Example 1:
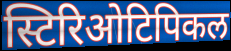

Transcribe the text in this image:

स्टिरिओटिपिकल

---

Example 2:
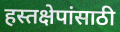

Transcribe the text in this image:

हस्तक्षेपांसाठी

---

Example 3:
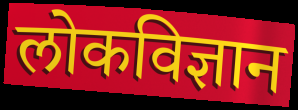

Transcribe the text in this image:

लोकविज्ञान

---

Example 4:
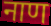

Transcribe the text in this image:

नाण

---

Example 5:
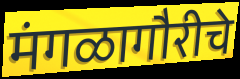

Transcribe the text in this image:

मंगळागौरीचे